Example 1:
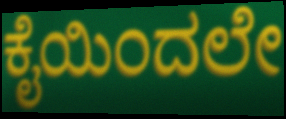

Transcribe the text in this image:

ಕೈಯಿಂದಲೇ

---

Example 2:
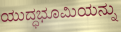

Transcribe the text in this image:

ಯುದ್ಧಭೂಮಿಯನ್ನು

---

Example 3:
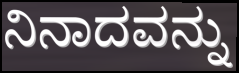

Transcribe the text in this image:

ನಿನಾದವನ್ನು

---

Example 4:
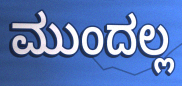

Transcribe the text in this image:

ಮುಂದಲ್ಲ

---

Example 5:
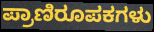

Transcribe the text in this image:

ಪ್ರಾಣಿರೂಪಕಗಳು